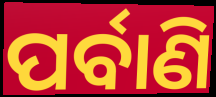
ପର୍ବାଣି